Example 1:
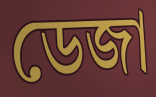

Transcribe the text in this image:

ডেজা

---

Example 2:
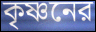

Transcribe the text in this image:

কৃষ্ণনের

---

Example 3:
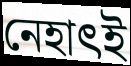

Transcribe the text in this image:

নেহাৎই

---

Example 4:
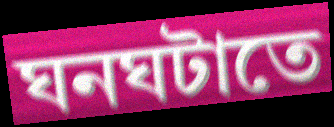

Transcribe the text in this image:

ঘনঘটাতে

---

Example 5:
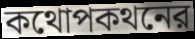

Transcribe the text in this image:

কথোপকথনের